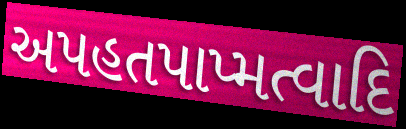
અપહતપાપ્મત્વાદિ